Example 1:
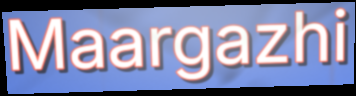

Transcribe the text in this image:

Maargazhi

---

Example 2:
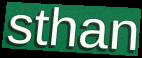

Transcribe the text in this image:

sthan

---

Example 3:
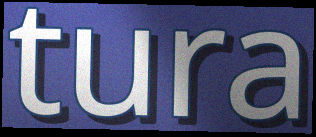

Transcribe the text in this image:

tura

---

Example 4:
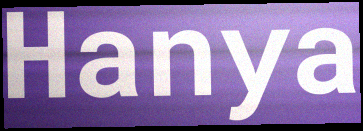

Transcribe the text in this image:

Hanya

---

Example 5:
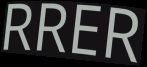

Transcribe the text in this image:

RRER